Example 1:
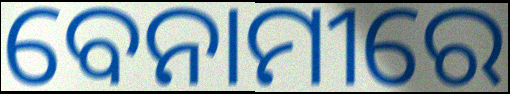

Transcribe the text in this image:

ବେନାମୀରେ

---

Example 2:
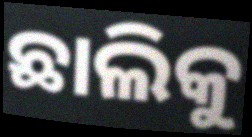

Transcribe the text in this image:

ଛାଲିକୁ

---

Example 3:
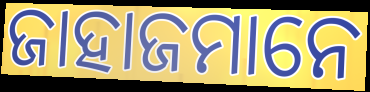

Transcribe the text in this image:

ଜାହାଜମାନେ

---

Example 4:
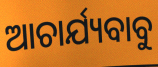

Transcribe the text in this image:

ଆଚାର୍ଯ୍ୟବାବୁ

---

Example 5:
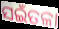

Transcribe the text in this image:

ସଇଁତଳା